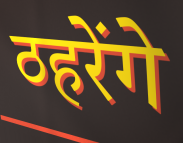
ठहरेंगे